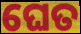
ଘେତ